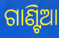
ଗାଣ୍ଟିଆ